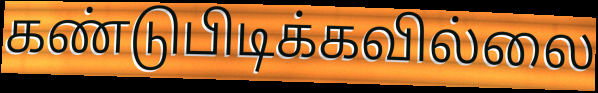
கண்டுபிடிக்கவில்லை